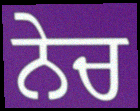
ਨੇਚ